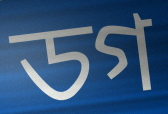
ডগ